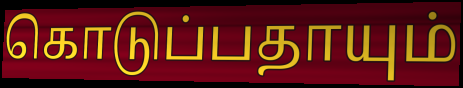
கொடுப்பதாயும்